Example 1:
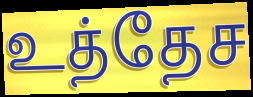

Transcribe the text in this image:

உத்தேச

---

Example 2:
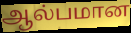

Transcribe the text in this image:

ஆல்பமான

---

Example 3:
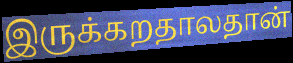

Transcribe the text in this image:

இருக்கறதாலதான்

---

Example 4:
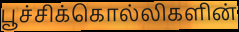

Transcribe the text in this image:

பூச்சிக்கொல்லிகளின்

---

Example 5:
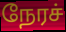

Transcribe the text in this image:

நேரச்